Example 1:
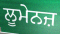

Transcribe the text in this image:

ਲੂਮੇਨਜ਼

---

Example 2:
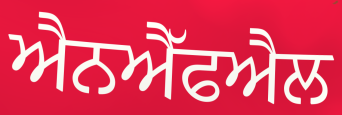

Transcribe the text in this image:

ਐਨਐੱਫਐਲ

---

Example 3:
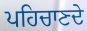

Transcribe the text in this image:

ਪਹਿਚਾਣਦੇ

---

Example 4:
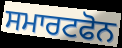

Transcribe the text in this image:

ਸਮਾਰਟਫੋਨ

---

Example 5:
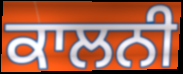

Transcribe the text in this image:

ਕਾਲਨੀ